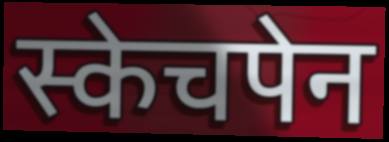
स्केचपेन